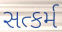
સત્કર્મ